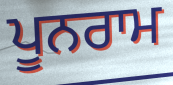
ਪੂਨਰਾਮ